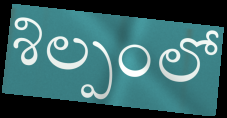
శిల్పంలో